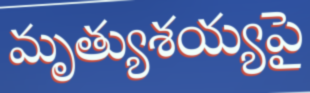
మృత్యుశయ్యపై